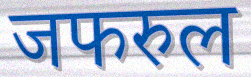
जफरुल